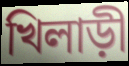
খিলাড়ী